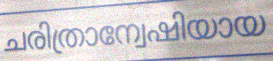
ചരിത്രാന്വേഷിയായ